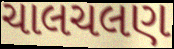
ચાલચલણ